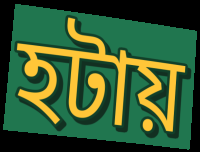
হটায়